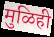
मुळिही